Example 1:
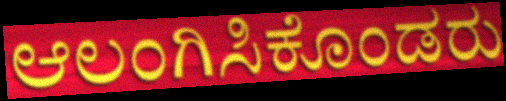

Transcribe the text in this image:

ಆಲಂಗಿಸಿಕೊಂಡರು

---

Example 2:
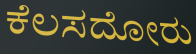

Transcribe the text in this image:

ಕೆಲಸದೋರು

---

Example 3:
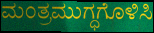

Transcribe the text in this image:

ಮಂತ್ರಮುಗ್ಧಗೊಳಿಸಿ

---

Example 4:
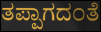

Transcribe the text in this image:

ತಪ್ಪಾಗದಂತೆ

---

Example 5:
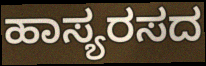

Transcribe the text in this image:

ಹಾಸ್ಯರಸದ